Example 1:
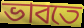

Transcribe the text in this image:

ভাবতে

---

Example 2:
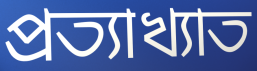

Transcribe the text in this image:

প্রত্যাখ্যাত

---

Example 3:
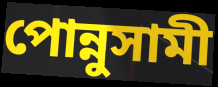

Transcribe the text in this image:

পোন্নুসামী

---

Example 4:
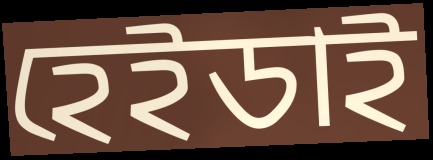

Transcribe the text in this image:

হেইডাই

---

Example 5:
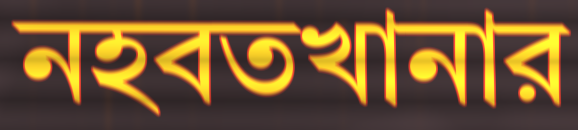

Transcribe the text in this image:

নহবতখানার